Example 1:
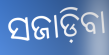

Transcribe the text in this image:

ସଜାଡ଼ିବା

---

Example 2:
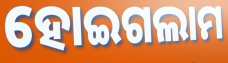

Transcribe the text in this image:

ହୋଇଗଲାମ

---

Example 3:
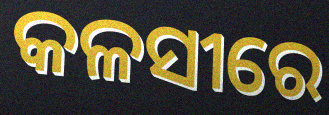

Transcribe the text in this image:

କଳସୀରେ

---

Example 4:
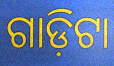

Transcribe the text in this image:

ଗାଡ଼ିଟା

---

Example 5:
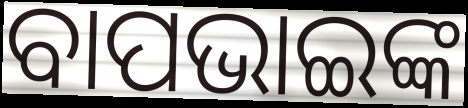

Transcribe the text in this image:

ବାପଭାଇଙ୍କ